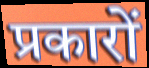
प्रकारों